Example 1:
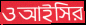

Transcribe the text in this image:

ওআইসির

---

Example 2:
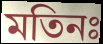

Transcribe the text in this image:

মতিনঃ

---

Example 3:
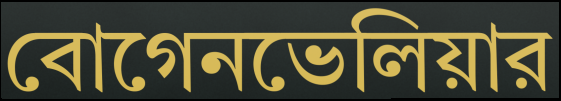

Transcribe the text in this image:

বোগেনভেলিয়ার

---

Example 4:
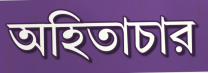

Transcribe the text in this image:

অহিতাচার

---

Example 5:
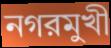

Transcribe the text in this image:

নগরমুখী